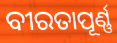
ବୀରତାପୂର୍ଣ୍ଣ